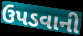
ઉપડવાની